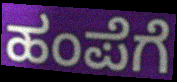
ಹಂಪೆಗೆ